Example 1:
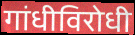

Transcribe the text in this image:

गांधीविरोधी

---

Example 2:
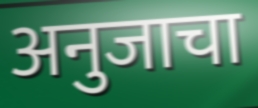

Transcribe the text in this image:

अनुजाचा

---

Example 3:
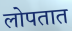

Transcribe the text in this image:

लोपतात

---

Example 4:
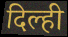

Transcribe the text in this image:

दिल्ही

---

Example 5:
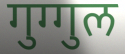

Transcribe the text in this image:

गुग्गुल